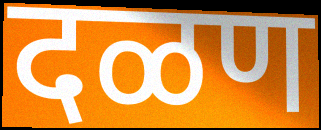
दळण